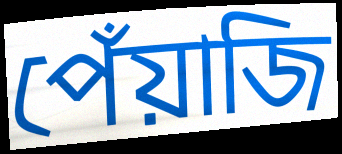
পেঁয়াজি